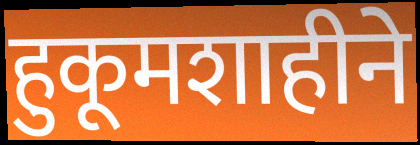
हुकूमशाहीने